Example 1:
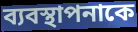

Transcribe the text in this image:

ব্যবস্থাপনাকে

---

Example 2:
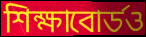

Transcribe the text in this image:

শিক্ষাবোর্ডও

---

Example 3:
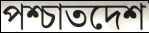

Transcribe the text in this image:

পশ্চাতদেশ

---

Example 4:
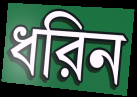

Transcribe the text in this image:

ধরিন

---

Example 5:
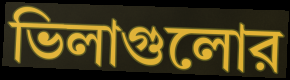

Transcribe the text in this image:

ভিলাগুলোর